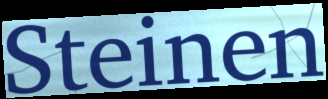
Steinen